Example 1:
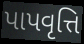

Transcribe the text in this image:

પાપવૃત્તિ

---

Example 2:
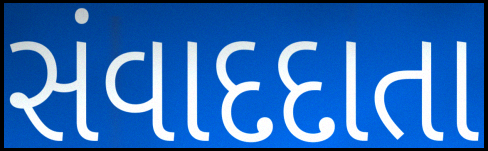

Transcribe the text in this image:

સંવાદદાતા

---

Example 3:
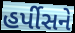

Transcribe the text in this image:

હર્પીસને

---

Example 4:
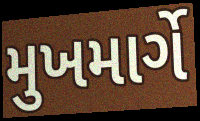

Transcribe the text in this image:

મુખમાર્ગે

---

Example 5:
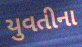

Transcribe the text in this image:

યુવતીના